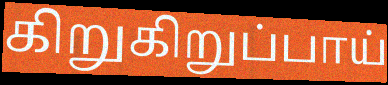
கிறுகிறுப்பாய்